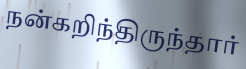
நன்கறிந்திருந்தார்